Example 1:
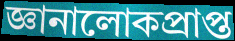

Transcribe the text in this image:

জ্ঞানালোকপ্রাপ্ত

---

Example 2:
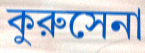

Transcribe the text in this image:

কুরুসেনা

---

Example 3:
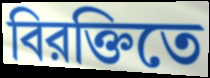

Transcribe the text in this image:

বিরক্তিতে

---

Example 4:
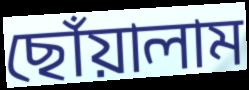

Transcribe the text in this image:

ছোঁয়ালাম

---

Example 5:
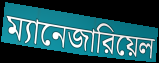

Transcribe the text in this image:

ম্যানেজারিয়েল